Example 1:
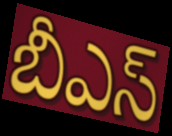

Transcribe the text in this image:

బీఎస్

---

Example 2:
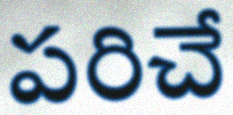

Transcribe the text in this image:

పరిచే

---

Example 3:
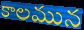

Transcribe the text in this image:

కాలమున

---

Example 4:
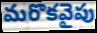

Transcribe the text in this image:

మరొకవైపు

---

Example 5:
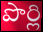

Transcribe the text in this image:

పొర్లి